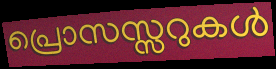
പ്രൊസസ്സറുകൾ